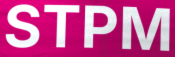
STPM